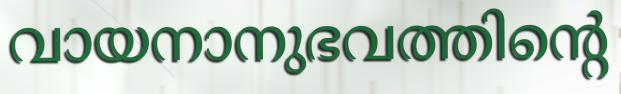
വായനാനുഭവത്തിന്റെ